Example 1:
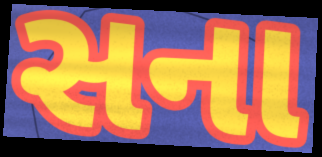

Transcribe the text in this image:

સના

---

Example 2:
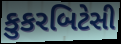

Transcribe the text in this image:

કુકરબિટેસી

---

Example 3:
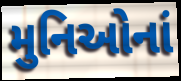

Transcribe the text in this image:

મુનિઓનાં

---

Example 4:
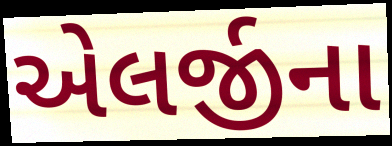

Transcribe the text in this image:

એલર્જીના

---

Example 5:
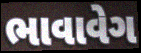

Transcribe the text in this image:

ભાવાવેગ